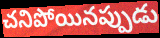
చనిపోయినప్పుడు